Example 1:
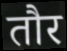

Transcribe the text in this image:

तौर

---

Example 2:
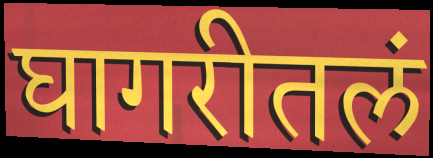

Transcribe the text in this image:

घागरीतलं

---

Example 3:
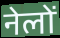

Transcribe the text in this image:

नेलों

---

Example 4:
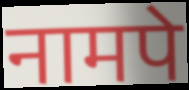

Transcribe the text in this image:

नामपे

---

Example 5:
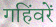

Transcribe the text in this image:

गहिंवरें